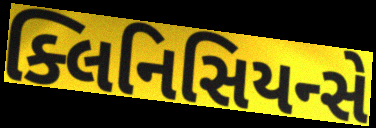
ક્લિનિસિયન્સે